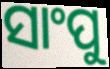
ସାଂପୁ